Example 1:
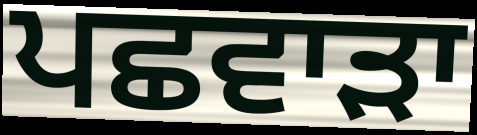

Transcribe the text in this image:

ਪਛਵਾੜਾ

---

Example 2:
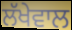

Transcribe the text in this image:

ਲੱਖੇਵਾਲ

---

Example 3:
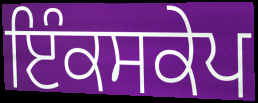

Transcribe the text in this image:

ਇੰਕਸਕੇਪ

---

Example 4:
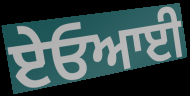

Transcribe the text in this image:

ਏਓਆਈ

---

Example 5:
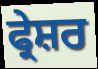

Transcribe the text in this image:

ਫ੍ਰੇਸ਼ਰ